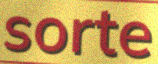
sorte